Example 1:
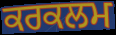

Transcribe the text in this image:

ਕਰਕਲਮ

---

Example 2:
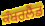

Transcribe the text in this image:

ਕੰਬਰਲੈਂਡ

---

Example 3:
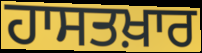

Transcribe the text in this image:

ਹਾਸਤਖ਼ਾਰ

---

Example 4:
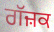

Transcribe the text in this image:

ਗੱਜ਼ਕ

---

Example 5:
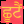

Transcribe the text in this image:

ਛੂਟੈਂ